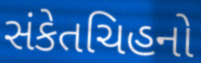
સંકેતચિહનો